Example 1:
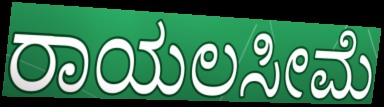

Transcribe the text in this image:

ರಾಯಲಸೀಮೆ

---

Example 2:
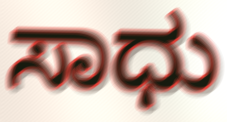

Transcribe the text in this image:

ಸಾಧು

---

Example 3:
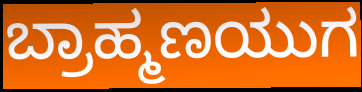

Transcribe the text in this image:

ಬ್ರಾಹ್ಮಣಯುಗ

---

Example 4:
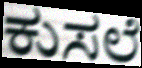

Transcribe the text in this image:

ಕುಸಲೆ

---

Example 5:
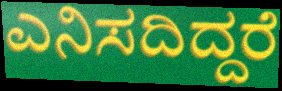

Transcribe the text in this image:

ಎನಿಸದಿದ್ದರೆ